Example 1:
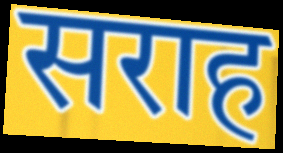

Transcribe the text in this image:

सराह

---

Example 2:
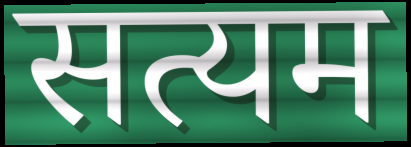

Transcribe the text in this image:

सत्यम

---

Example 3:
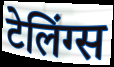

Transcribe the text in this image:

टेलिंग्स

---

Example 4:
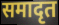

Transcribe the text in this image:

समादृत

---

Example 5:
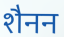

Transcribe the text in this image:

शैनन